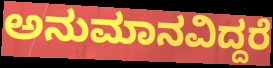
ಅನುಮಾನವಿದ್ದರೆ